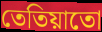
তেতিয়াতো